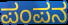
ಪಂಪನ